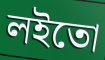
লইতো